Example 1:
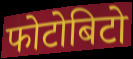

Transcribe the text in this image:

फोटोबिटो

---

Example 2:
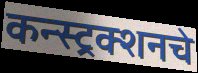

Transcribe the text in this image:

कन्स्ट्रक्शनचे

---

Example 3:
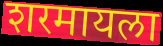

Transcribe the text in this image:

शरमायला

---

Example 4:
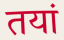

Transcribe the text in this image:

तयां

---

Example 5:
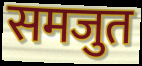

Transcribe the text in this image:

समजुत